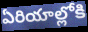
ఏరియాల్లోకి